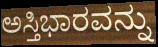
ಅಸ್ತಿಭಾರವನ್ನು